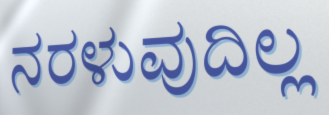
ನರಳುವುದಿಲ್ಲ